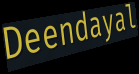
Deendayal